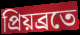
প্ৰিয়ব্ৰতে